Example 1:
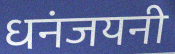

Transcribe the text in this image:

धनंजयनी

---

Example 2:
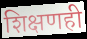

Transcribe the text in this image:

शिक्षणही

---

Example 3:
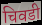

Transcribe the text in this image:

चिवडी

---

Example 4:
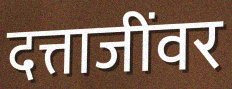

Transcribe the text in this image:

दत्ताजींवर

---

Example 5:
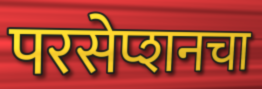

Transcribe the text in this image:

परसेप्शनचा